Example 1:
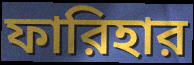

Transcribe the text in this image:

ফারিহার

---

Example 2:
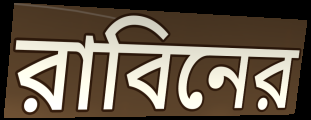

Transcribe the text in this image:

রাবিনের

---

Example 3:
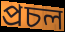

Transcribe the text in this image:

প্রচল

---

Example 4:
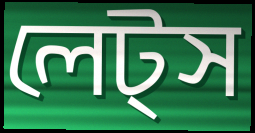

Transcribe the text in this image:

লেট্‌স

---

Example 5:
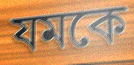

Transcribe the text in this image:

যমকে